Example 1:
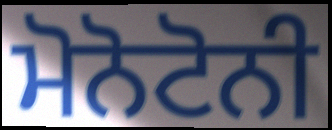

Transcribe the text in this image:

ਮੋਨੋਟੋਨੀ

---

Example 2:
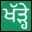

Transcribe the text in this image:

ਖੱੜ੍ਹੇ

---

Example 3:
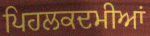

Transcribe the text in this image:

ਪਿਹਲਕਦਮੀਆਂ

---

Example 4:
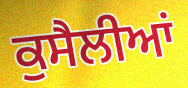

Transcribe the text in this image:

ਕੁਸੈਲੀਆਂ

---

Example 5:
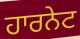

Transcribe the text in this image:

ਹਾਰਨੇਟ